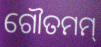
ଗୌତମମ୍